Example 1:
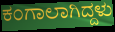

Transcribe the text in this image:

ಕಂಗಾಲಾಗಿದ್ದಳು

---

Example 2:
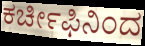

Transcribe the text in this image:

ಕರ್ಚೀಫಿನಿಂದ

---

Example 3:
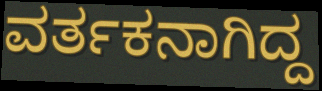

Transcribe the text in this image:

ವರ್ತಕನಾಗಿದ್ದ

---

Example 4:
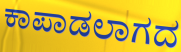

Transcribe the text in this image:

ಕಾಪಾಡಲಾಗದ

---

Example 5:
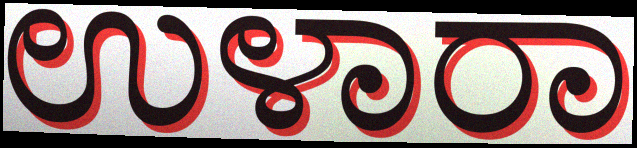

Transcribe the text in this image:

ಉಳಾರಾ